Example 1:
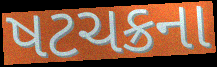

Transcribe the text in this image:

ષટચક્રના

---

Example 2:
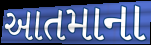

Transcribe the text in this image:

આતમાના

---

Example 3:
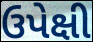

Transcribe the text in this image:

ઉપેક્ષી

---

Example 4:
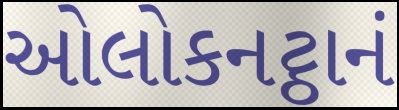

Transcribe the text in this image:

ઓલોકનટ્ઠાનં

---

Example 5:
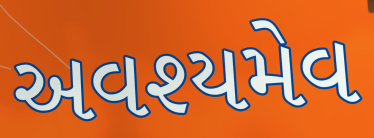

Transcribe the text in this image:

અવશ્યમેવ